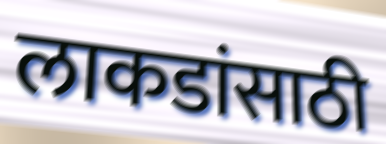
लाकडांसाठी